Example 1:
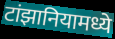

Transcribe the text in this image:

टांझानियामध्ये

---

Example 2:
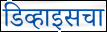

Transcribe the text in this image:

डिव्हाइसचा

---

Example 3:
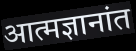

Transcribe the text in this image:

आत्मज्ञानांत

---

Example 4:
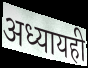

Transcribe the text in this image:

अध्यायही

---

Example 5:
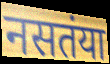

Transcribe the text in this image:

नसतंया